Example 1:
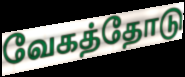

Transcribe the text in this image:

வேகத்தோடு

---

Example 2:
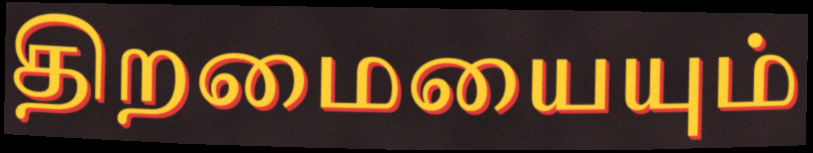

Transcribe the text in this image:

திறமையையும்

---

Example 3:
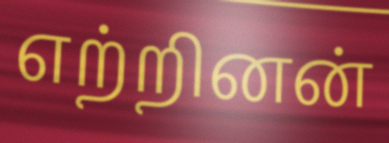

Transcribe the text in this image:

எற்றினன்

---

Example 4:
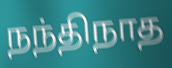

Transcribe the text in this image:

நந்திநாத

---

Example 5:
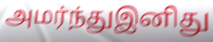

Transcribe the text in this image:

அமர்ந்துஇனிது